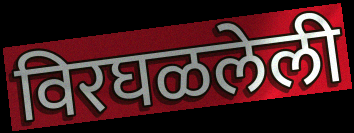
विरघळलेली